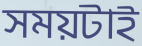
সময়টাই